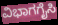
ವಿಭಾಗಗೈಸಿ